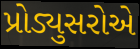
પ્રોડ્યુસરોએ